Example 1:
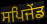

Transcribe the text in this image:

ਸਪਿਜੇਂਡ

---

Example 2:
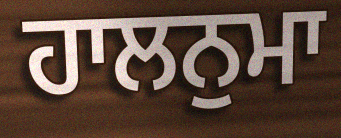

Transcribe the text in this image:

ਹਾਲਨੁਮਾ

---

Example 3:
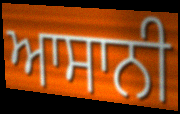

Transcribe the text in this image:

ਆਸਾਨੀ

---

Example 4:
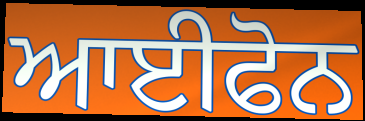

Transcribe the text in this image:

ਆਈਫੋਨ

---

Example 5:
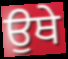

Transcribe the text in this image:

ਉਥੇ